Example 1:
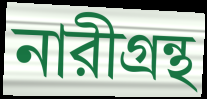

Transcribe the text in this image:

নারীগ্রন্থ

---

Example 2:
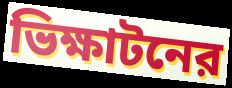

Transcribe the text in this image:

ভিক্ষাটনের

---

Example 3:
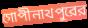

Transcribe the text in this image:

গোপীনাথপুরের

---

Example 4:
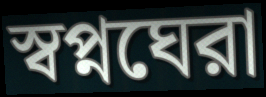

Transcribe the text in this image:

স্বপ্নঘেরা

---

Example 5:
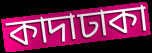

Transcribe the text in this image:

কাদাঢাকা